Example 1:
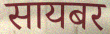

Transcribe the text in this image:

सायबर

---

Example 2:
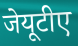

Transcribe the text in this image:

जेयूटीए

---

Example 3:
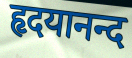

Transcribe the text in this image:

हृदयानन्द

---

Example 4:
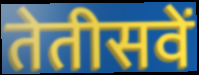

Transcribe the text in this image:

तेतीसवें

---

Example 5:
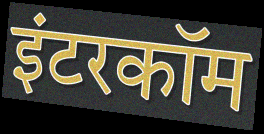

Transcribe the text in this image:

इंटरकॉम